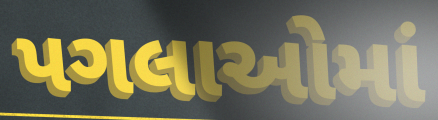
પગલાઓમાં